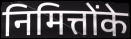
निमित्तोंके